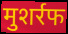
मुशर्रफ